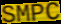
SMPC